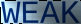
WEAK